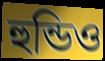
হুন্ডিও